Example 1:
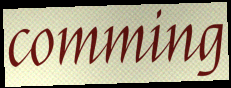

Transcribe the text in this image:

comming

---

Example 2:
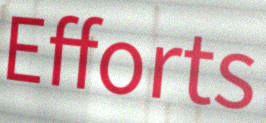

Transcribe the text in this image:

Efforts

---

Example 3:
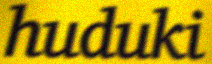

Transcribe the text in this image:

huduki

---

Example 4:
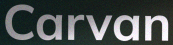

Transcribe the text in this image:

Carvan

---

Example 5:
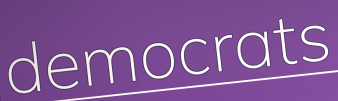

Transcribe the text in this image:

democrats